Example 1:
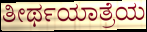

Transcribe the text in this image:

ತೀರ್ಥಯಾತ್ರೆಯ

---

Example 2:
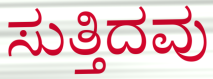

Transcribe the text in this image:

ಸುತ್ತಿದವು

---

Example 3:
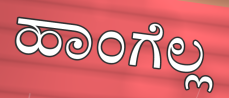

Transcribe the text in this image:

ಹಾಂಗೆಲ್ಲ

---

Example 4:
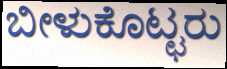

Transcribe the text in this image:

ಬೀಳುಕೊಟ್ಟರು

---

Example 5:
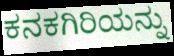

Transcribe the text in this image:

ಕನಕಗಿರಿಯನ್ನು